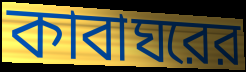
কাবাঘরের